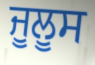
ਜੂਲੂਸ